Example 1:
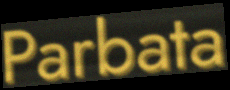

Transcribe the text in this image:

Parbata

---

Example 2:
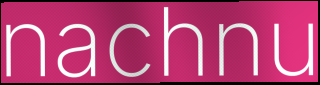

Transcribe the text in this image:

nachnu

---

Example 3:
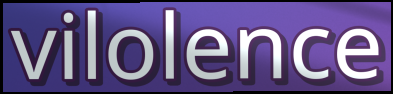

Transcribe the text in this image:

vilolence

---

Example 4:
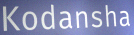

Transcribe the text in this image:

Kodansha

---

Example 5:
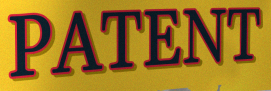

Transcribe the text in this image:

PATENT